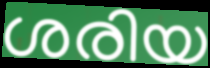
ശരിയ